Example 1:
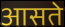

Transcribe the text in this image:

आसते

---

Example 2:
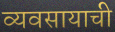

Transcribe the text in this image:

व्यवसायाची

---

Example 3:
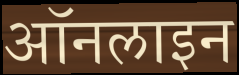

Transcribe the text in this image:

ऑनलाइन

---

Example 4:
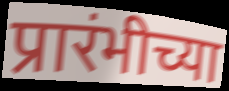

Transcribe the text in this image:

प्रारंभीच्या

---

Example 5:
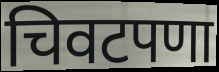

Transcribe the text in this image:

चिवटपणा